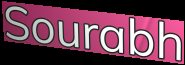
Sourabh